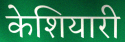
केशियारी